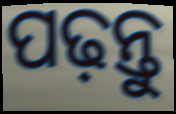
ପଢ଼ନ୍ତୁ